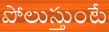
పోలుస్తుంటే